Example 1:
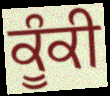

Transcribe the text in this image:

ਕੂੰਕੀ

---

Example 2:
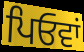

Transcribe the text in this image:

ਪਿਓਵਾਂ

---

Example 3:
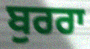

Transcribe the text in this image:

ਬੁਰਰਾ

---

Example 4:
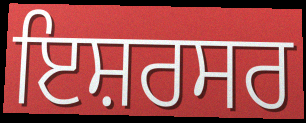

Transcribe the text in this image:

ਇਸ਼ਰਸਰ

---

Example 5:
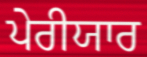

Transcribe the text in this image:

ਪੇਰੀਯਾਰ